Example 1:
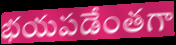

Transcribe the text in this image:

భయపడేంతగా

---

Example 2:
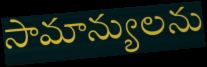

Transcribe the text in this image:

సామాన్యులను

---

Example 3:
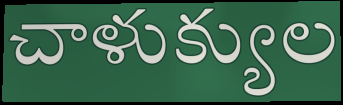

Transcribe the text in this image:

చాళుక్యుల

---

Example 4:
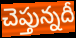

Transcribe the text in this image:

చెప్తున్నదీ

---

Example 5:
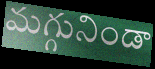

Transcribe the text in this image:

మగ్గునిండా